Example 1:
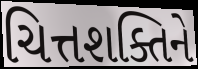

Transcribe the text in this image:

ચિત્તશક્તિને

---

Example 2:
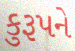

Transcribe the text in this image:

કુરૂપને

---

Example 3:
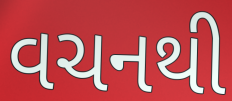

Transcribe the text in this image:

વચનથી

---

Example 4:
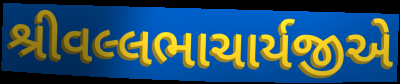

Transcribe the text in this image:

શ્રીવલ્લભાચાર્યજીએ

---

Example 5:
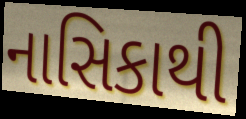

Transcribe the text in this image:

નાસિકાથી